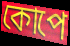
কোপে